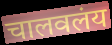
चालवलंय